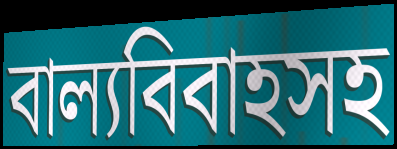
বাল্যবিবাহসহ